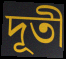
দূতী